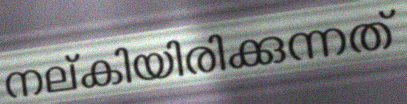
നല്‌കിയിരിക്കുന്നത്